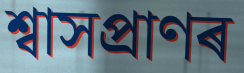
শ্বাসপ্ৰাণৰ